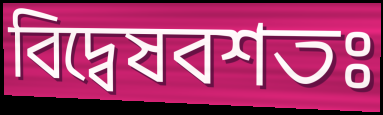
বিদ্বেষবশতঃ